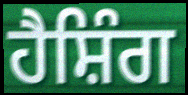
ਹੈਸ਼ਿੰਗ